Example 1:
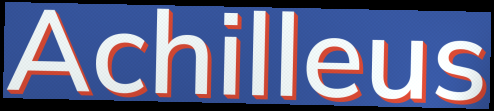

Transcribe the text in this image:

Achilleus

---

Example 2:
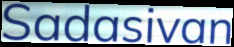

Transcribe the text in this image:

Sadasivan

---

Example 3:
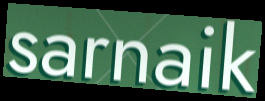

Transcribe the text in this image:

sarnaik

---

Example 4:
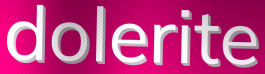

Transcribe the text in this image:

dolerite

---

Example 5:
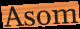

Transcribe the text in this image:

Asom